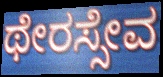
ಥೇರಸ್ಸೇವ